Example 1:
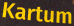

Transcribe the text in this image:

Kartum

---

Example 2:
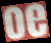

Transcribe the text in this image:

oe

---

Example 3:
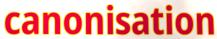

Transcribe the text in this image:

canonisation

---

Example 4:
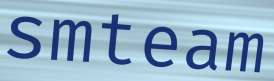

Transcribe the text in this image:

smteam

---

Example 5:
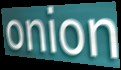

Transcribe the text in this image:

onion